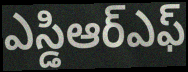
ఎస్డిఆర్ఎఫ్